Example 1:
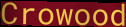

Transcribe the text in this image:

Crowood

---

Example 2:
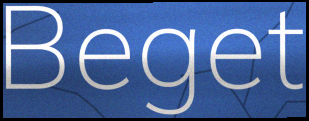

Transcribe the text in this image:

Beget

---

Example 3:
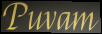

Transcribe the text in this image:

Puvam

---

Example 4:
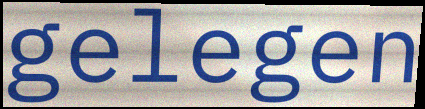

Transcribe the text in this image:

gelegen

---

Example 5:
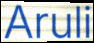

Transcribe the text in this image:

Aruli